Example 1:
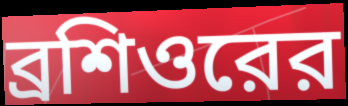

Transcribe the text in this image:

ব্রশিওরের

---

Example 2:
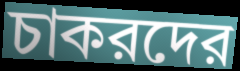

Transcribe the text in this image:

চাকরদের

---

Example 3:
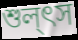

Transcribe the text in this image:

শুল্ৎস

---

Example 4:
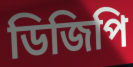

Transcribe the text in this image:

ডিজিপি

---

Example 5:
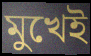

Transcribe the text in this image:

মুখেই